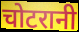
चोटरानी